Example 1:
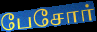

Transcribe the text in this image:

பேசோர்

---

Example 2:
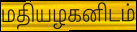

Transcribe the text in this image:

மதியழகனிடம்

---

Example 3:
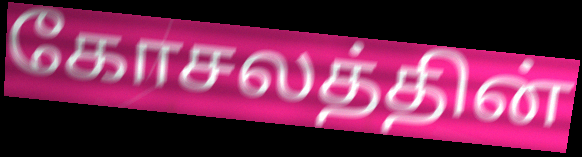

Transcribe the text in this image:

கோசலத்தின்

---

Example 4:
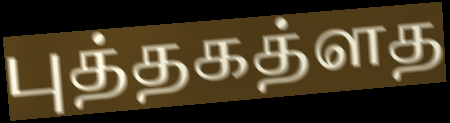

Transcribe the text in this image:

புத்தகத்ளத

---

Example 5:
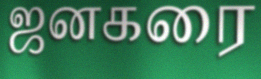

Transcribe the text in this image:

ஜனகரை